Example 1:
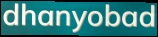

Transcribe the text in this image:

dhanyobad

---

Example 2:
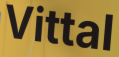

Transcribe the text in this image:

Vittal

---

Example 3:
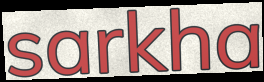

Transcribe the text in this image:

sarkha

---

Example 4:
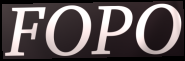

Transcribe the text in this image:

FOPO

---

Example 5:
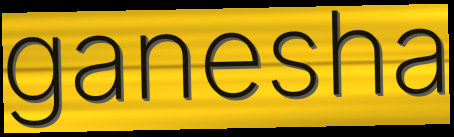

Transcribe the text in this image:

ganesha